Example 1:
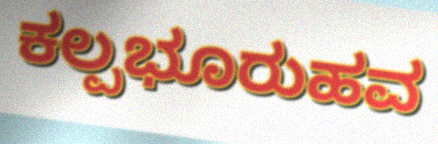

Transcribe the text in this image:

ಕಲ್ಪಭೂರುಹವ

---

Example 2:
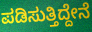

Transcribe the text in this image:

ಪಡಿಸುತ್ತಿದ್ದೇನೆ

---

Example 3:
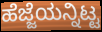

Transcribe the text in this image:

ಹೆಜ್ಜೆಯನ್ನಿಟ್ಟ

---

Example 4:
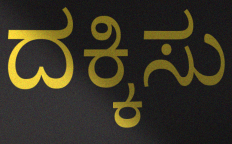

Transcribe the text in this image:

ದಕ್ಕಿಸು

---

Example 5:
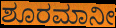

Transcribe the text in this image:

ಶೂರಮಾನೀ